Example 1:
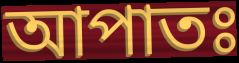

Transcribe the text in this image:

আপাতঃ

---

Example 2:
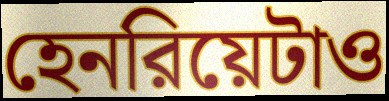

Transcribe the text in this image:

হেনরিয়েটাও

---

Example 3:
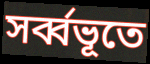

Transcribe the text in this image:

সর্ব্বভূতে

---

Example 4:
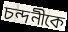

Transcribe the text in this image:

চন্দনীকে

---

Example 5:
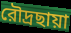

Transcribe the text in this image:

রৌদ্রছায়া